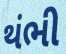
થંભી